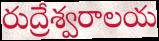
రుద్రేశ్వరాలయ